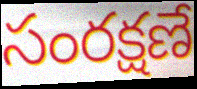
సంరక్షణే